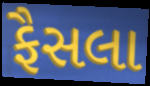
ફૈસલા